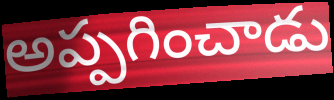
అప్పగించాడు